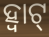
ହ୍ବାଟ୍